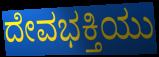
ದೇವಭಕ್ತಿಯು